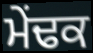
ਮੇਂਢਕ